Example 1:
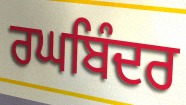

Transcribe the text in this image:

ਰਘਬਿੰਦਰ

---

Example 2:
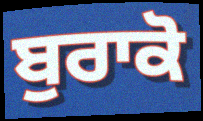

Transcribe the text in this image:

ਬੁਰਾਕੋ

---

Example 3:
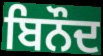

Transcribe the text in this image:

ਬਿਨੌਦ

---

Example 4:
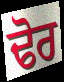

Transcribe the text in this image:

ਢੋਰ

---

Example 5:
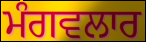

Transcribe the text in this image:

ਮੰਗਵਲਾਰ